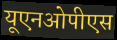
यूएनओपीएस